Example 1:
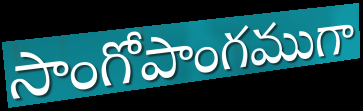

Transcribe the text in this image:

సాంగోపాంగముగా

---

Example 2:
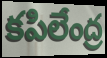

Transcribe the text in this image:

కపిలేంద్ర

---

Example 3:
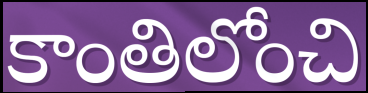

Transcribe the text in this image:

కాంతిలోంచి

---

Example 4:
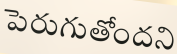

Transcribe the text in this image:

పెరుగుతోందని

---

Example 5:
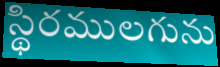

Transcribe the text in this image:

స్థిరములగును